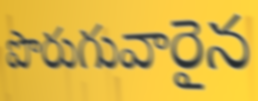
పొరుగువారైన